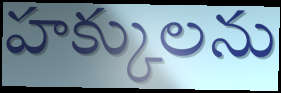
హక్కులను